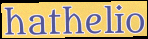
hathelio